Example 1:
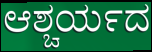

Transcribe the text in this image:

ಆಶ್ಚರ್ಯದ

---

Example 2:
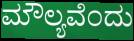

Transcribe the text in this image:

ಮೌಲ್ಯವೆಂದು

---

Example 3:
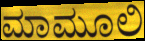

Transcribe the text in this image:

ಮಾಮೂಲಿ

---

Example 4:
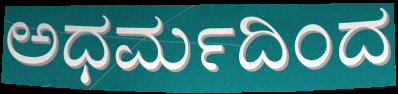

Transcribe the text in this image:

ಅಧರ್ಮದಿಂದ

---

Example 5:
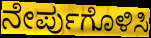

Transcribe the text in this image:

ನೇರ್ಪುಗೊಳಿಸಿ